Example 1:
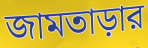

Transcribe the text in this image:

জামতাড়ার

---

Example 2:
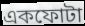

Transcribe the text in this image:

একফোটা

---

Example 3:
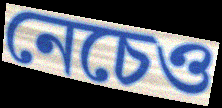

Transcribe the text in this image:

নেচেও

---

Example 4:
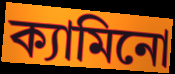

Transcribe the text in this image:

ক্যামিনো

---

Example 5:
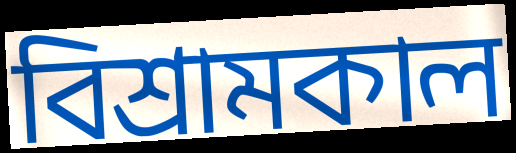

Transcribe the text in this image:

বিশ্রামকাল